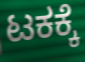
ಟಕಕ್ಕೆ